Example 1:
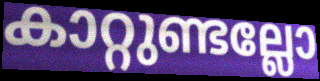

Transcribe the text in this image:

കാറ്റുണ്ടല്ലോ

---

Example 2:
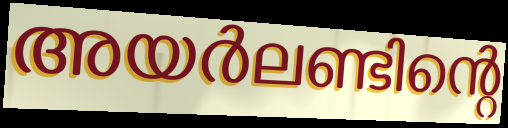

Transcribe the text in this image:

അയർലണ്ടിന്റെ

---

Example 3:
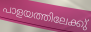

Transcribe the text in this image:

പാളയത്തിലേക്കു്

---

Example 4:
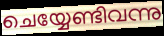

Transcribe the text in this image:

ചെയ്യേണ്ടിവന്നു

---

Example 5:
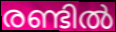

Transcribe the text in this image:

രണ്ടിൽ